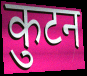
कुटन